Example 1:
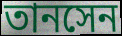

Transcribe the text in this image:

তানসেন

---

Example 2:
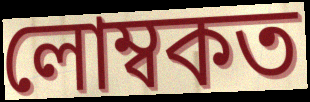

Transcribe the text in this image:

লোম্বকত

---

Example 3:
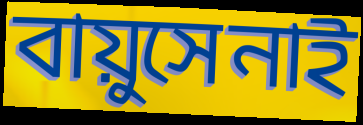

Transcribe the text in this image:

বায়ুসেনাই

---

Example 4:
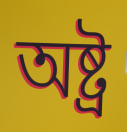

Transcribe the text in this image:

অষ্ট্ৰ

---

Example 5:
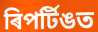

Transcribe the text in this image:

ৰিপৰ্টিঙত